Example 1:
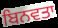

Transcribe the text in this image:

ਬਿਨਵਤਾ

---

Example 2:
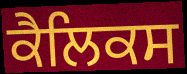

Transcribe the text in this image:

ਕੈਲਿਕਸ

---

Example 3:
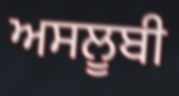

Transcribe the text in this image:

ਅਸਲੂਬੀ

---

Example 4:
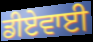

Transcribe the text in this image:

ਡੀਏਵਾਈ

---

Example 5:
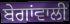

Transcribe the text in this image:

ਬੇਗਾਂਵਾਲੀ